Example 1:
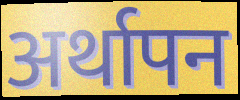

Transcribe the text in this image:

अर्थापन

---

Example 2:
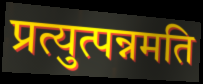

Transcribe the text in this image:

प्रत्युत्पन्नमति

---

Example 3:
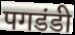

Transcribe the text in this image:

पगडंडी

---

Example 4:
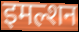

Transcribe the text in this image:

इमल्शन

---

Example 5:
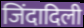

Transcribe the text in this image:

जिंदादिली